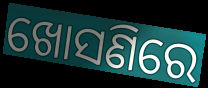
ଖୋସଣିରେ